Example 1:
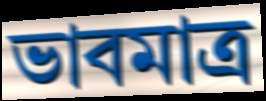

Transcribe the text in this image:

ভাবমাত্র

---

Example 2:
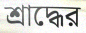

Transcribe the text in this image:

শ্রাদ্ধের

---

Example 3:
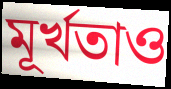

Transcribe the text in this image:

মূর্খতাও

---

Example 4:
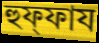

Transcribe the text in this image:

হুফ্ফায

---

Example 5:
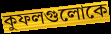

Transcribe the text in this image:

কুফলগুলোকে